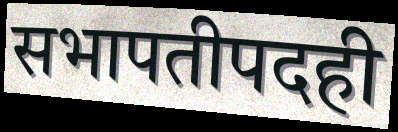
सभापतीपदही